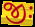
જીઃ